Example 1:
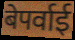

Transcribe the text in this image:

बेपर्वाई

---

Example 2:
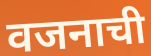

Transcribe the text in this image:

वजनाची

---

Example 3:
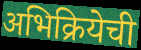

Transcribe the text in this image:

अभिक्रियेची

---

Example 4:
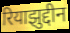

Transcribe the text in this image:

रियाझुद्दीन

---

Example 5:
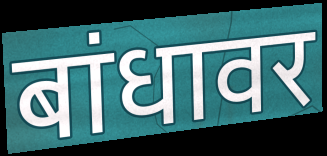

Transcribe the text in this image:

बांधावर